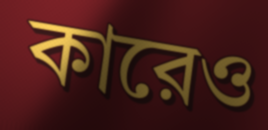
কারেও